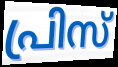
പ്രിസ്